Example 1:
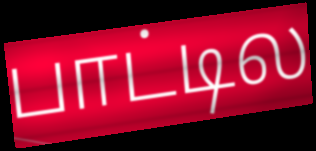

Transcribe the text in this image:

பாட்டில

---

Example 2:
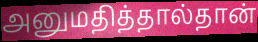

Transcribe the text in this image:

அனுமதித்தால்தான்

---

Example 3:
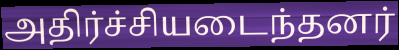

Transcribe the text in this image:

அதிர்ச்சியடைந்தனர்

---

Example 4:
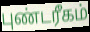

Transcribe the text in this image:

புண்டரீகம்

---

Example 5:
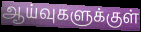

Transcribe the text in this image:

ஆய்வுகளுக்குள்